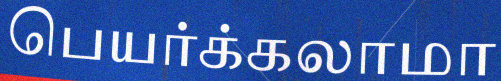
பெயர்க்கலாமா